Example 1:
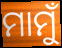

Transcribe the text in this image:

ମାମୁଁ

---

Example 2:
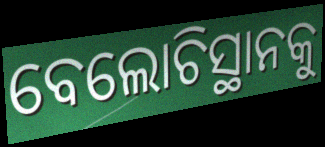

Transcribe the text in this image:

ବେଲୋଚିସ୍ଥାନକୁ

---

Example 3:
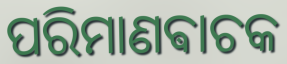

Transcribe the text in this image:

ପରିମାଣଵାଚକ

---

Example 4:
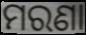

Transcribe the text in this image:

ମରଣା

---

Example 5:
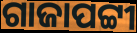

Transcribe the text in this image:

ଗାଜାପଟ୍ଟୀ